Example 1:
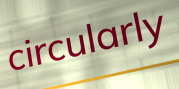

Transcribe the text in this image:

circularly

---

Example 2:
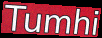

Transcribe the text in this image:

Tumhi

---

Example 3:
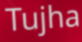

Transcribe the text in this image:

Tujha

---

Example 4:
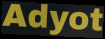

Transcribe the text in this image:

Adyot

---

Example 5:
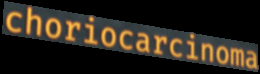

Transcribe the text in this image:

choriocarcinoma